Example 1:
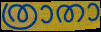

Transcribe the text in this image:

ത്രാതാ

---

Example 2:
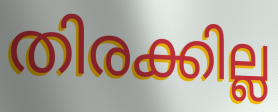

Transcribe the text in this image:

തിരക്കില്ല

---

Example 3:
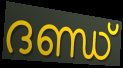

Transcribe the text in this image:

ദണ്ഡ്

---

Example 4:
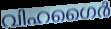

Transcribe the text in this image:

വിഹഗൈർ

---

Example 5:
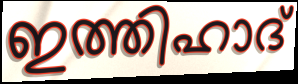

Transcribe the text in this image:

ഇത്തിഹാദ്